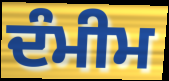
ਦੰਮੀਮ